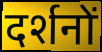
दर्शनों